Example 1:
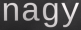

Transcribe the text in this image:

nagy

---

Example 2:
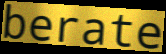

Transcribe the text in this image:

berate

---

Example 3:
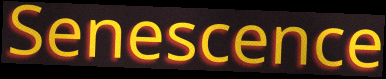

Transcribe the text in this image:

Senescence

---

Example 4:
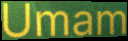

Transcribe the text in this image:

Umam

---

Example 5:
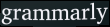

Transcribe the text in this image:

grammarly